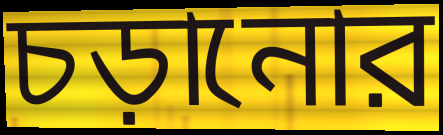
চড়ানোর